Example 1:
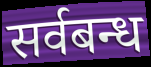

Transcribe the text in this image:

सर्वबन्ध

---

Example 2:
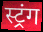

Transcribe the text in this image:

स्ट्रंग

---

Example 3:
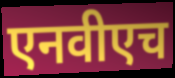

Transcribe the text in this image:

एनवीएच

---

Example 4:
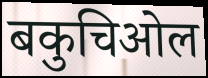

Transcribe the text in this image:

बकुचिओल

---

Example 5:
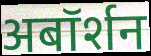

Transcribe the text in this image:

अबॉर्शन